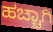
ಹಚ್ಚಾಗಿ